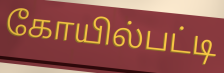
கோயில்பட்டி